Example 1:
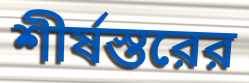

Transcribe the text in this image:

শীর্ষস্তরের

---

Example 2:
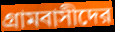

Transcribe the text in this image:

গ্রামবাসীদের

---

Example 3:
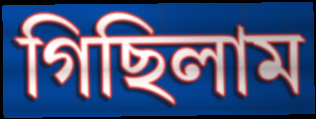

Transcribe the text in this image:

গিছিলাম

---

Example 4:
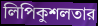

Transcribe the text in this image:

লিপিকুশলতার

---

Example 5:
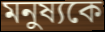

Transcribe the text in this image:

মনুষ্যকে